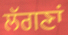
ਲੱਗਣਾਂ